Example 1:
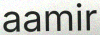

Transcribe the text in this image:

aamir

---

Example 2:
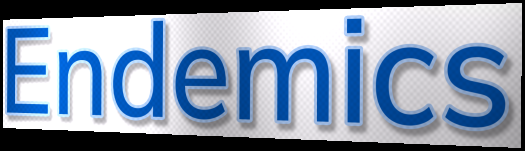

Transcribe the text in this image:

Endemics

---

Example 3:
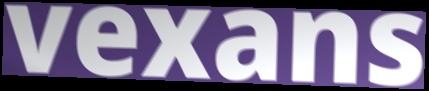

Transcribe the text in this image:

vexans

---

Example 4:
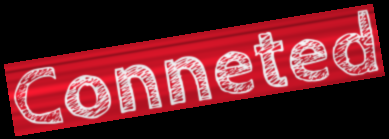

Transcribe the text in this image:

Conneted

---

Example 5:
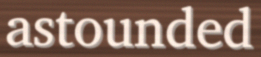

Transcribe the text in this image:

astounded